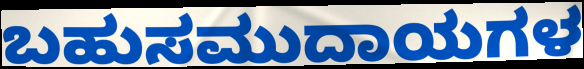
ಬಹುಸಮುದಾಯಗಳ